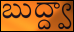
బుద్ద్వా